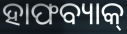
ହାଫବ୍ୟାକ୍